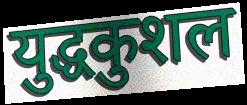
युद्धकुशल